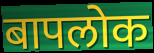
बापलोक